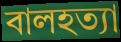
বালহত্যা